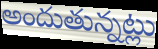
అందుతున్నట్లు